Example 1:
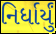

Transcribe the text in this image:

નિર્ધાર્યું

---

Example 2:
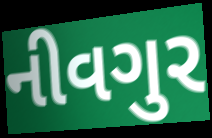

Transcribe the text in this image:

નીવગુર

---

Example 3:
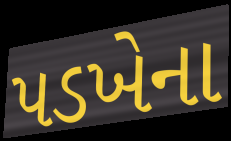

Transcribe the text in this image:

પડખેના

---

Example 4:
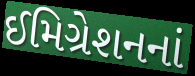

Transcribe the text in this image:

ઈમિગ્રેશનનાં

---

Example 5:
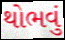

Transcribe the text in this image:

થોભવું